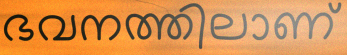
ഭവനത്തിലാണ്